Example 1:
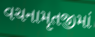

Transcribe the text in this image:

વચનામૃતજીમાં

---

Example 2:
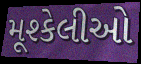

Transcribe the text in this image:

મૂશ્કેલીઓ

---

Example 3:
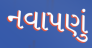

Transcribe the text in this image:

નવાપણું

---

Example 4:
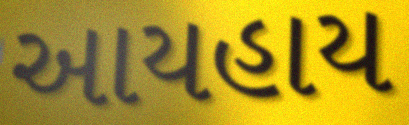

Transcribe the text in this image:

આયહાય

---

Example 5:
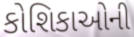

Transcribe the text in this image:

કોશિકાઓની